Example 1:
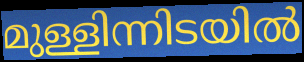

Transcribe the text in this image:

മുള്ളിന്നിടയിൽ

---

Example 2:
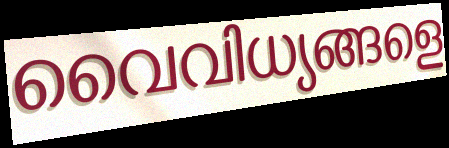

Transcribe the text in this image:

വൈവിധ്യങ്ങളെ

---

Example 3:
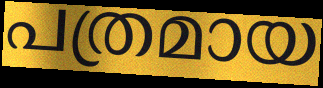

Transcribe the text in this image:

പത്രമായ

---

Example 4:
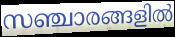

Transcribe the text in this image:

സഞ്ചാരങ്ങളിൽ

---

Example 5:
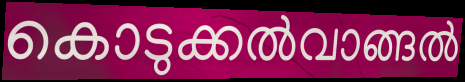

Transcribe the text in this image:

കൊടുക്കൽവാങ്ങൽ